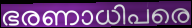
ഭരണാധിപരെ